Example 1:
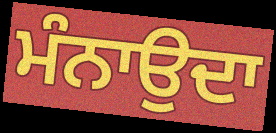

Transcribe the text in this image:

ਮੰਨਾਉਦਾ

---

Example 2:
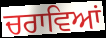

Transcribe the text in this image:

ਚਰਾਵਿਆਂ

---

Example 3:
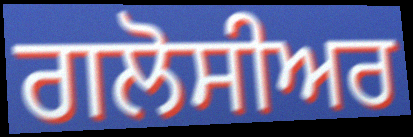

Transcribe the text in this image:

ਗਲੋਸੀਅਰ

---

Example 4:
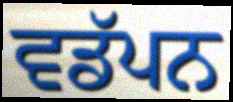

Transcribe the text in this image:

ਵਡੱਪਨ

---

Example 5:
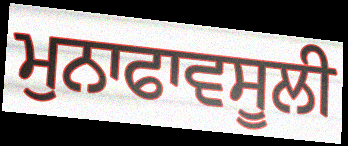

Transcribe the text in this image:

ਮੁਨਾਫਾਵਸੂਲੀ